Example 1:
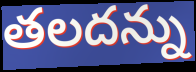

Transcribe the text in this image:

తలదన్ను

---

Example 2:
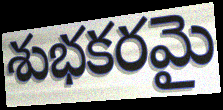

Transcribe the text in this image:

శుభకరమై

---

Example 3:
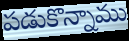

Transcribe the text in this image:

పడుకొన్నాము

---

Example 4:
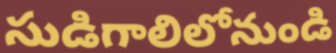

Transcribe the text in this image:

సుడిగాలిలోనుండి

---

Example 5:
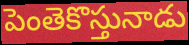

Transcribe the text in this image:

పెంతెకొస్తునాడు